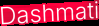
Dashmati